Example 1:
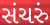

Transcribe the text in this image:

સંચરું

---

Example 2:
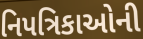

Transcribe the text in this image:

નિપત્રિકાઓની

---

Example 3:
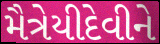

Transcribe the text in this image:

મૈત્રેયીદેવીને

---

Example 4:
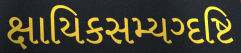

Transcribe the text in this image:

ક્ષાયિકસમ્યગ્દષ્ટિ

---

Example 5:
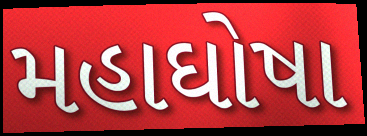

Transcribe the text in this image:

મહાઘોષા